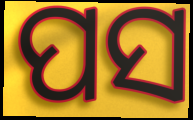
ପସ